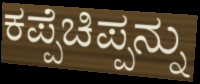
ಕಪ್ಪೆಚಿಪ್ಪನ್ನು